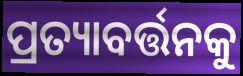
ପ୍ରତ୍ୟାବର୍ତ୍ତନକୁ